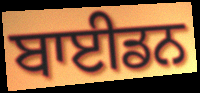
ਬਾਈਡਨ